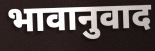
भावानुवाद